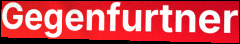
Gegenfurtner